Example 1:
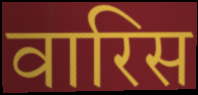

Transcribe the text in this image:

वारिस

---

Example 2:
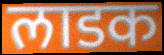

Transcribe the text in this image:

लाडक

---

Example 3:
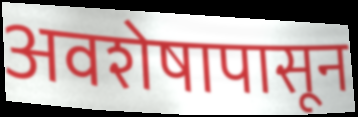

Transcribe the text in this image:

अवशेषापासून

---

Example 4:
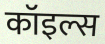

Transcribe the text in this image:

कॉइल्स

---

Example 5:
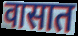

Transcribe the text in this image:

वासात